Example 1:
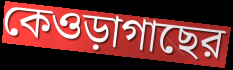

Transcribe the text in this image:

কেওড়াগাছের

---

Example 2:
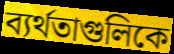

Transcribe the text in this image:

ব্যর্থতাগুলিকে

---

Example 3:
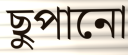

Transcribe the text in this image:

ছুপানো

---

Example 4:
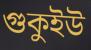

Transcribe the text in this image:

গুকুইউ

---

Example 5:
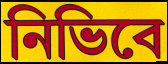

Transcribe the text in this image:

নিভিবে